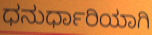
ಧನುರ್ಧಾರಿಯಾಗಿ